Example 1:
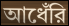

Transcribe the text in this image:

আধেঁরি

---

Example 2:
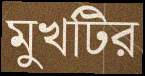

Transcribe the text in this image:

মুখটির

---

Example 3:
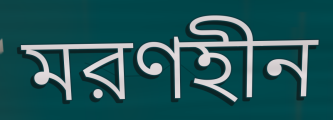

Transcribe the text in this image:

মরণহীন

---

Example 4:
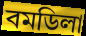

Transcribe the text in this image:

বমডিলা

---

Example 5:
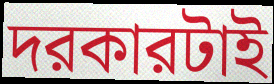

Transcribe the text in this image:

দরকারটাই